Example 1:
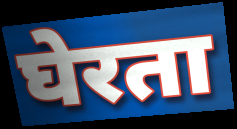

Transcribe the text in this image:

घेरता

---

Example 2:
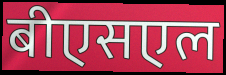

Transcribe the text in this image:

बीएसएल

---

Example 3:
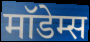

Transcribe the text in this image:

मॉडेम्स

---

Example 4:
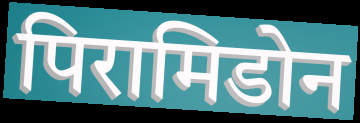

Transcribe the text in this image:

पिरामिडोन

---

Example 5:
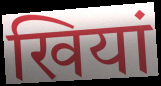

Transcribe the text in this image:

खियां